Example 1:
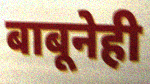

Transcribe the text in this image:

बाबूनेही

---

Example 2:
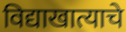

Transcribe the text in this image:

विद्याखात्याचे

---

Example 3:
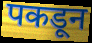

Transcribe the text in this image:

पकडून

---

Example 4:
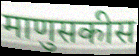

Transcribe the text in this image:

माणुसकीस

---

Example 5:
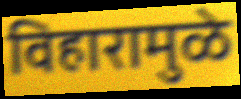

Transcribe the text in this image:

विहारामुळे